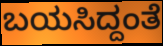
ಬಯಸಿದ್ದಂತೆ